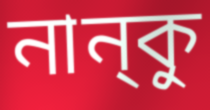
নান্‌কু